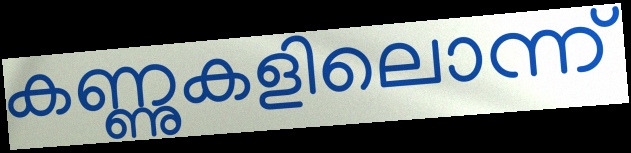
കണ്ണുകളിലൊന്ന്